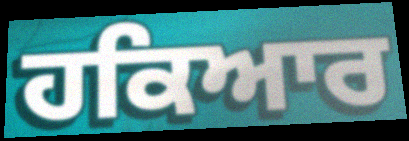
ਹਕਿਆਰ